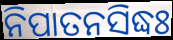
ନିପାତନସିଦ୍ଧଃ